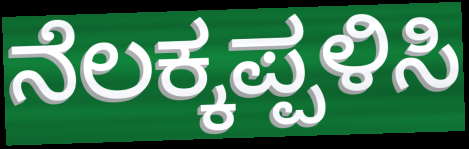
ನೆಲಕ್ಕಪ್ಪಳಿಸಿ